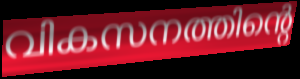
വികസനത്തിന്റെ